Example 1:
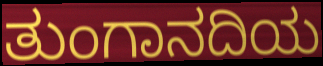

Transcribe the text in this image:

ತುಂಗಾನದಿಯ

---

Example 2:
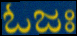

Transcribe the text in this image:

ಓಜಃ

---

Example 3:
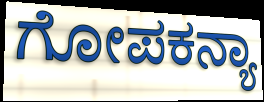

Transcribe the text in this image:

ಗೋಪಕನ್ಯಾ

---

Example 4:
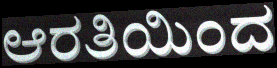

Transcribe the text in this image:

ಆರತಿಯಿಂದ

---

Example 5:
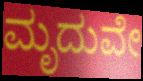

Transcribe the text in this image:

ಮೃದುವೇ